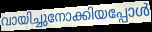
വായിച്ചുനോക്കിയപ്പോൾ